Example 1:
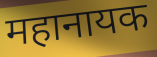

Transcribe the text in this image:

महानायक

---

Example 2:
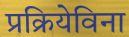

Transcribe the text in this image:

प्रक्रियेविना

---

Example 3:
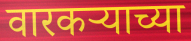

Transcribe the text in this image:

वारकऱ्याच्या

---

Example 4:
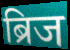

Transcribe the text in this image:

ब्रिज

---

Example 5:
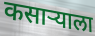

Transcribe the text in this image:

कसाऱ्याला